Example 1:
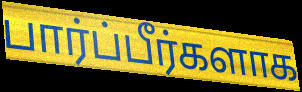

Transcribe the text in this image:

பார்ப்பீர்களாக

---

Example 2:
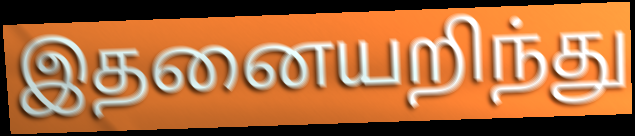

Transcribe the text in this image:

இதனையறிந்து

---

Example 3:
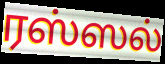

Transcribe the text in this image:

ரஸ்ஸல்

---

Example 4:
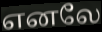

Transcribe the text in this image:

எனலே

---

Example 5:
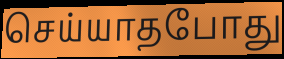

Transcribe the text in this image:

செய்யாதபோது